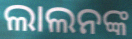
ଲାଲନଙ୍କ